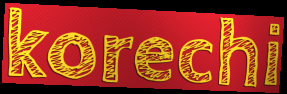
korechi